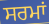
ਸਰਮਾਂ